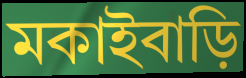
মকাইবাড়ি